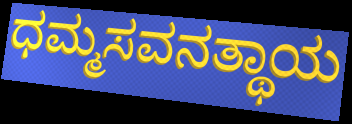
ಧಮ್ಮಸವನತ್ಥಾಯ